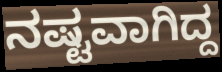
ನಷ್ಟವಾಗಿದ್ದ